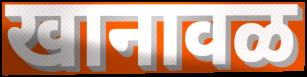
खानावळ